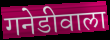
गनेडीवाला